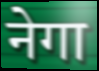
नेगा